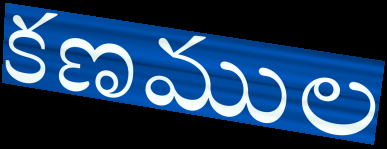
కణముల